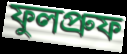
ফুলপ্রুফ